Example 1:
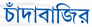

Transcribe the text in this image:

চাঁদাবাজির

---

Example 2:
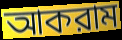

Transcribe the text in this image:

আকরাম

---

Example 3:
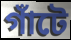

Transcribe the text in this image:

গাঁটে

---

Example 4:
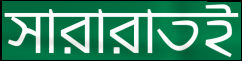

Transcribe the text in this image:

সারারাতই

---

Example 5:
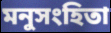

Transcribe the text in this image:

মনুসংহিতা